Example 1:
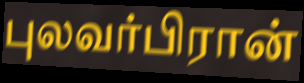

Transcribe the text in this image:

புலவர்பிரான்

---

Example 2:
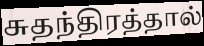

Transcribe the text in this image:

சுதந்திரத்தால்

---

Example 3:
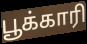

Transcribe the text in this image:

பூக்காரி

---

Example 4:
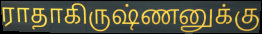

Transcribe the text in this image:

ராதாகிருஷ்ணனுக்கு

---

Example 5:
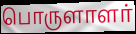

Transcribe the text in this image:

பொருளாளர்